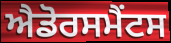
ਐਡੋਰਸਮੈਂਟਸ